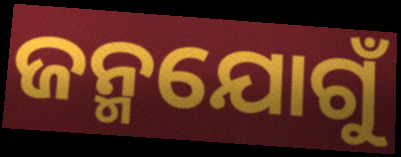
ଜନ୍ମଯୋଗୁଁ